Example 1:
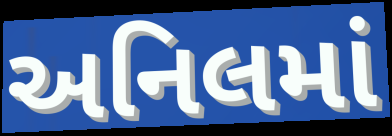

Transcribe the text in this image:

અનિલમાં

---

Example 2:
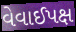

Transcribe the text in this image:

વેવાઈપક્ષ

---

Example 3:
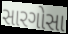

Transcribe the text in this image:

સારગોસા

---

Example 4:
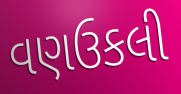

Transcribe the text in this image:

વણઉકલી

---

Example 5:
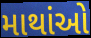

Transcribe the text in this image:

માથાંઓ